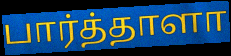
பார்த்தாளா